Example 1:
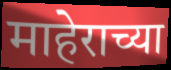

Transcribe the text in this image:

माहेराच्या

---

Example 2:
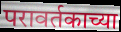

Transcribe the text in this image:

परावर्तकाच्या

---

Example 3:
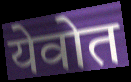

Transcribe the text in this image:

येवोत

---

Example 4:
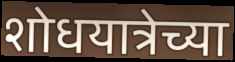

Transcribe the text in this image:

शोधयात्रेच्या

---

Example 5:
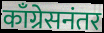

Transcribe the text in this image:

काँग्रेसनंतर